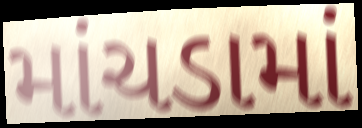
માંચડામાં